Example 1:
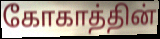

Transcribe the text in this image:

கோகாத்தின்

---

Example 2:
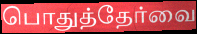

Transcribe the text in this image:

பொதுத்தேர்வை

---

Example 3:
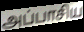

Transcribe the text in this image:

அப்பாசிய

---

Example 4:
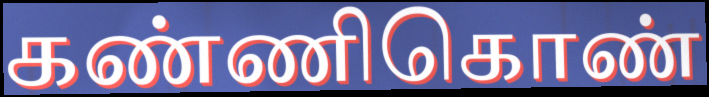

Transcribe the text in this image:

கண்ணிகொண்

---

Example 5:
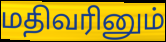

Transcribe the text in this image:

மதிவரினும்